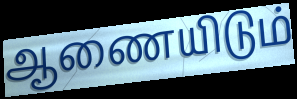
ஆணையிடும்